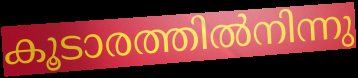
കൂടാരത്തിൽനിന്നു